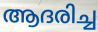
ആദരിച്ച